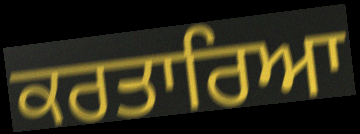
ਕਰਤਾਰਿਆ